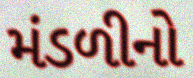
મંડળીનો